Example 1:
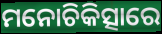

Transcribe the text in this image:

ମନୋଚିକିତ୍ସାରେ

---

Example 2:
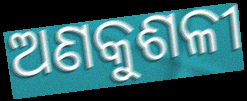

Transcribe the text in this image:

ଅଣକୁଶଳୀ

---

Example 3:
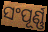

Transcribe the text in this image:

ସଂପୂର୍ଣ୍ଣ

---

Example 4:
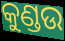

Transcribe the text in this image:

କୁଣ୍ଡଉ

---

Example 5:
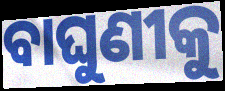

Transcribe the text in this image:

ବାଘୁଣୀକୁ